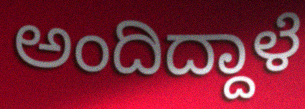
ಅಂದಿದ್ದಾಳೆ